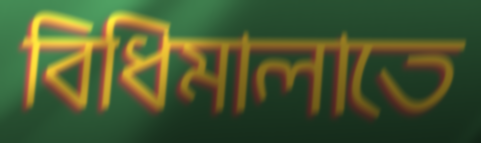
বিধিমালাতে